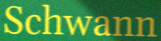
Schwann